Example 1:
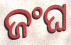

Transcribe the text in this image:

ଜଂଘ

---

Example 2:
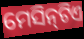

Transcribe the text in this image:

ମେସିନ୍‌ଟିଏ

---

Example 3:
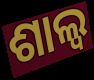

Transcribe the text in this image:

ଶାଲ୍ୱ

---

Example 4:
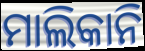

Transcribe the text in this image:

ମାଲିକାନି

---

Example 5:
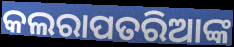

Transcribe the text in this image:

କଲରାପତରିଆଙ୍କ